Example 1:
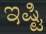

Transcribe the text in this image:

ಇಷ್ಟಿ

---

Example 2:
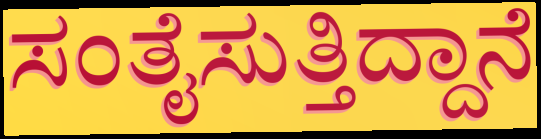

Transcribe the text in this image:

ಸಂತೈಸುತ್ತಿದ್ದಾನೆ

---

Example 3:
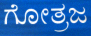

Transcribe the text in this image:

ಗೋತ್ರಜ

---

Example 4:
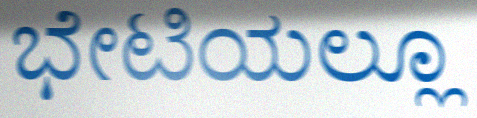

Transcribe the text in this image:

ಭೇಟಿಯಲ್ಲೂ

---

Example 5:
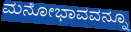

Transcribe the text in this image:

ಮನೋಭಾವವನ್ನೂ